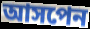
আসপেন